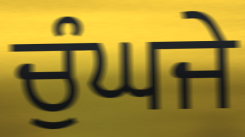
ਚੁੰਘਜੇ